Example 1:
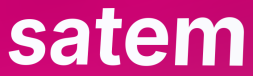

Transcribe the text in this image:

satem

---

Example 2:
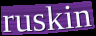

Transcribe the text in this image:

ruskin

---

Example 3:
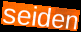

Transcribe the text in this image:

seiden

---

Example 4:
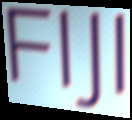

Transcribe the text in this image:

FIJI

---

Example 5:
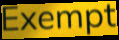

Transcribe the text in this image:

Exempt